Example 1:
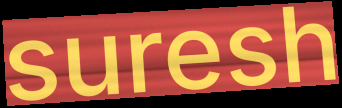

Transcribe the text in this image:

suresh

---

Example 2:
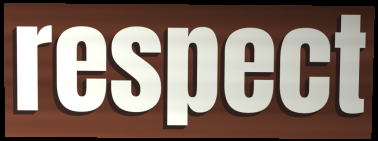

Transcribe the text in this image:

respect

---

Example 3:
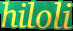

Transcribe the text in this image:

hiloli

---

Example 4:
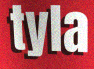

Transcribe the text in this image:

tyla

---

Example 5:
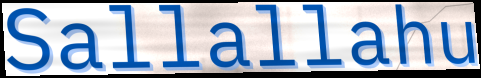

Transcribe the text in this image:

Sallallahu